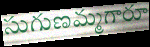
సుగుణమ్మగారూ